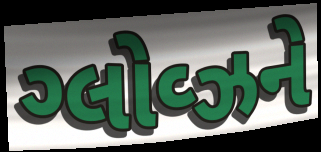
ગ્લોવ્ઝને